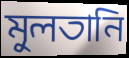
মুলতানি